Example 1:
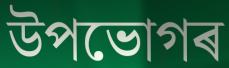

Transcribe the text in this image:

উপভোগৰ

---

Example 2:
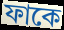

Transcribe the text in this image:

ফাকে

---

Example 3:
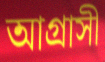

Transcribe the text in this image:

আগ্ৰাসী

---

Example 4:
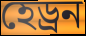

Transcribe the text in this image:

হেড্ৰন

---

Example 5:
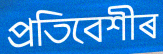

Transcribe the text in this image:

প্ৰতিবেশীৰ